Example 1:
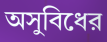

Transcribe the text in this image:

অসুবিধের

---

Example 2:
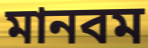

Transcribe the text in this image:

মানবম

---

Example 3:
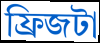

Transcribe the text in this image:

ফ্রিজটা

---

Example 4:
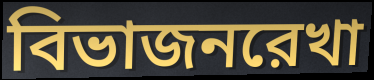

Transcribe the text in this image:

বিভাজনরেখা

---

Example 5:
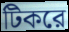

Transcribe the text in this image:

টিকরে